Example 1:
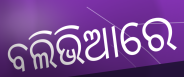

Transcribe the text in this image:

ବଲିଭିଆରେ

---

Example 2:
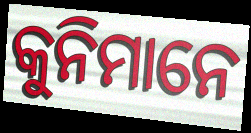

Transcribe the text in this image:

କୁନିମାନେ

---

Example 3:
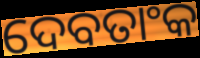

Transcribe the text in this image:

ଦେବତାଂକ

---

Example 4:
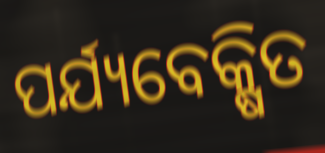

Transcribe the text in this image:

ପର୍ଯ୍ୟବେକ୍ଷିତ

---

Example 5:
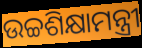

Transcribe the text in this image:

ଉଚ୍ଚଶିକ୍ଷାମନ୍ତ୍ରୀ